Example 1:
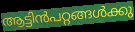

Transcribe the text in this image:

ആട്ടിൻപറ്റങ്ങൾക്കു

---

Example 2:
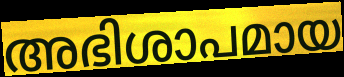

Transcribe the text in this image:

അഭിശാപമായ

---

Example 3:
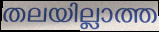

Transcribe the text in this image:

തലയില്ലാത്ത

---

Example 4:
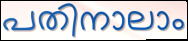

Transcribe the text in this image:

പതിനാലാം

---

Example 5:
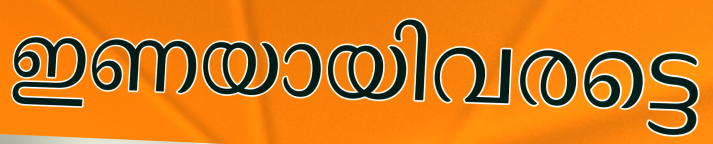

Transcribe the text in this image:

ഇണയായിവരട്ടെ